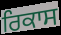
ਰਿਕਾਸ